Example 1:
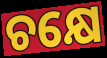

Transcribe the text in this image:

ଚକ୍ଷେ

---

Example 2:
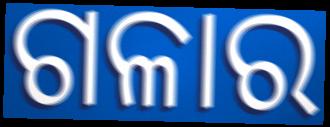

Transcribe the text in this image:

ଗଳାର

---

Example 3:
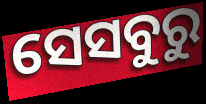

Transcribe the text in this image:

ସେସବୁରୁ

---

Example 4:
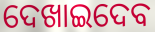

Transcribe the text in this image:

ଦେଖାଇଦେବ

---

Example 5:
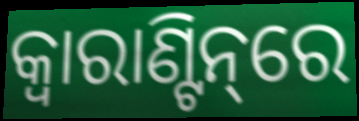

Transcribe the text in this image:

କ୍ବାରାଣ୍ଟିନ୍‌ରେ